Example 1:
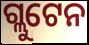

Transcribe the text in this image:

ଗ୍ଲୁଟେନ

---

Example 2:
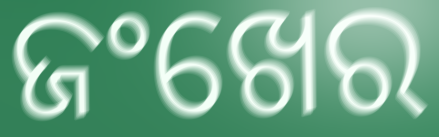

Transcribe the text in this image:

ଜଂଖେର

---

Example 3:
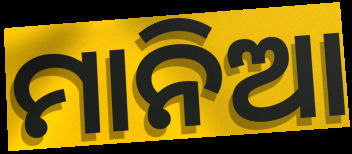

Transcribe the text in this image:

ମାନିଆ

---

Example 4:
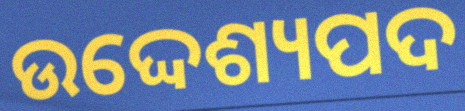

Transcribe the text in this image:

ଉଦ୍ଦେଶ୍ୟପଦ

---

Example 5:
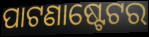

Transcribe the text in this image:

ପାଟଣାଷ୍ଟେଟର